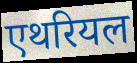
एथरियल